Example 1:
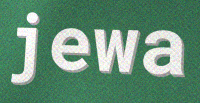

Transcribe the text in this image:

jewa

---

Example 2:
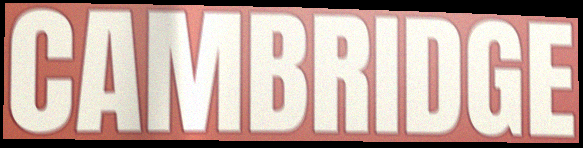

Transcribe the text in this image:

CAMBRIDGE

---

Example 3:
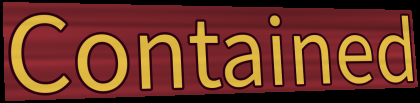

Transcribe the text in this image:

Contained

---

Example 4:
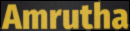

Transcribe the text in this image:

Amrutha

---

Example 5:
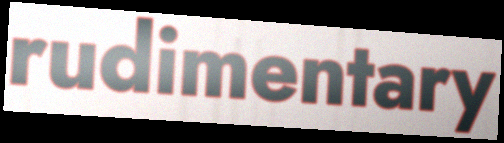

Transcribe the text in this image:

rudimentary